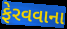
ફેરવવાના